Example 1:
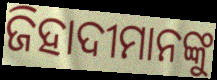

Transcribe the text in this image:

ଜିହାଦୀମାନଙ୍କୁ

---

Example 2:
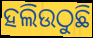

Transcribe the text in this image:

ହଲିଉଠୁଛି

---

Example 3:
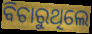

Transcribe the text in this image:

ବିଚାରୁଥିଲେ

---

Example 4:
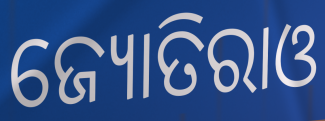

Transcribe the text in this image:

ଜ୍ୟୋତିରାଓ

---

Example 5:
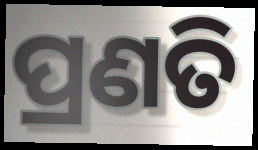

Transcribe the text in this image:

ପ୍ରଣତି